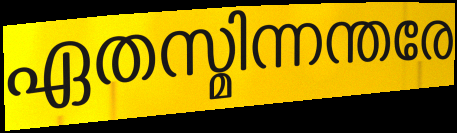
ഏതസ്മിന്നന്തരേ